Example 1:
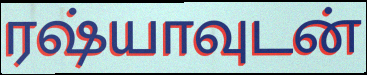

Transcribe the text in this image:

ரஷ்யாவுடன்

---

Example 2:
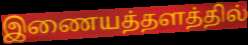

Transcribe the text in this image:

இணையத்தளத்தில்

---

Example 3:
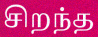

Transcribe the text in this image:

சிறந்த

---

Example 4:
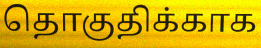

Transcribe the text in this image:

தொகுதிக்காக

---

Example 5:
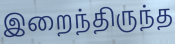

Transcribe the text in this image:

இறைந்திருந்த